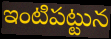
ఇంటిపట్టున